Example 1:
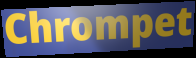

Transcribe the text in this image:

Chrompet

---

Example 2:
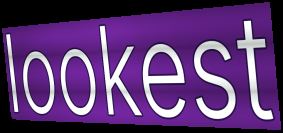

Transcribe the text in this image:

lookest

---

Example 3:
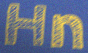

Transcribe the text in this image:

Hn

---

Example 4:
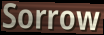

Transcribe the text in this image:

Sorrow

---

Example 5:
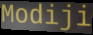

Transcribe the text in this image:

Modiji